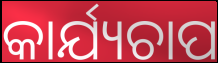
କାର୍ଯ୍ୟଚାପ